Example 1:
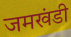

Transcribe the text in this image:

जमखंडी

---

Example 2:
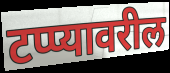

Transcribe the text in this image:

टप्प्यावरील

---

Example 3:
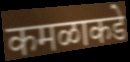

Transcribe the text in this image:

कमळाकडे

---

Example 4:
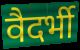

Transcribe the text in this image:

वैदर्भी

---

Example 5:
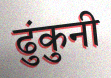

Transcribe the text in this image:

ढुंकुनी